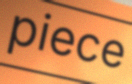
piece